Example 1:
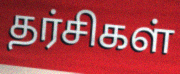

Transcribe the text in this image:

தர்சிகள்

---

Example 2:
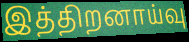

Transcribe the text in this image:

இத்திறனாய்வு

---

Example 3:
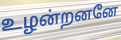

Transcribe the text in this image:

உழன்றனனே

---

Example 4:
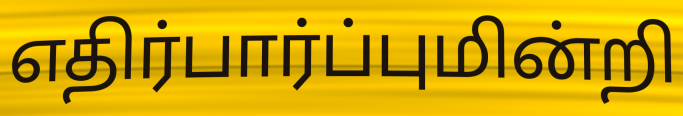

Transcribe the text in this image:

எதிர்பார்ப்புமின்றி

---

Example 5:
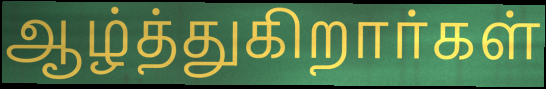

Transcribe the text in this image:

ஆழ்த்துகிறார்கள்